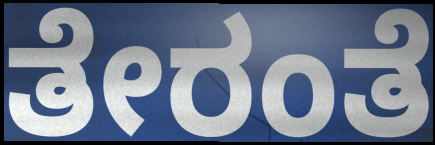
ತೇರಂತೆ